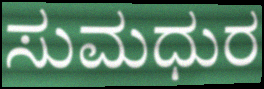
ಸುಮಧುರ